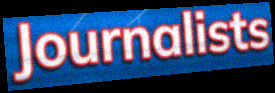
Journalists